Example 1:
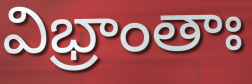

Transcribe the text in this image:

విభ్రాంతాః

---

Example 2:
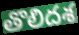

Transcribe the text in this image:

తొలిదశ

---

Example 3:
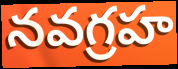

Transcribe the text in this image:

నవగ్రహ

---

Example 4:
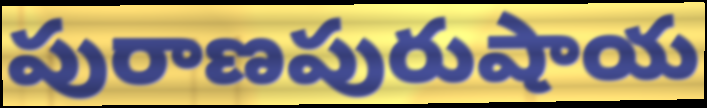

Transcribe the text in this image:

పురాణపురుషాయ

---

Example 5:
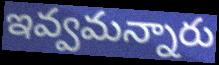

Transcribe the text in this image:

ఇవ్వమన్నారు